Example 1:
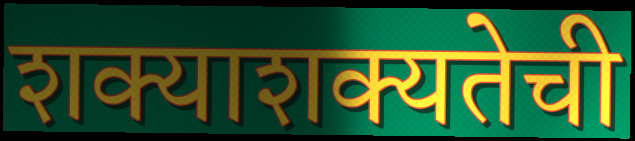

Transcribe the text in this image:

शक्याशक्यतेची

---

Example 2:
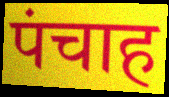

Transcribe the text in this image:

पंचाह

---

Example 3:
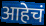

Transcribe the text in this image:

आहेचं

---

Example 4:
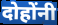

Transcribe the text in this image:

दोहोंनी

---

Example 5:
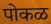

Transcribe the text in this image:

पोकळ